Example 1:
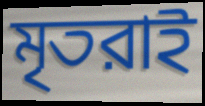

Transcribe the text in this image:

মৃতরাই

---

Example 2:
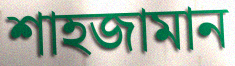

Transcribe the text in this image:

শাহজামান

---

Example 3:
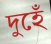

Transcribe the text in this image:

দুহেঁ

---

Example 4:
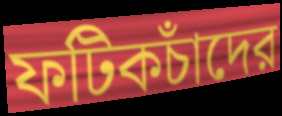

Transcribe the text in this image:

ফটিকচাঁদের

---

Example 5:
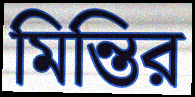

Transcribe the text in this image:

মিন্তির